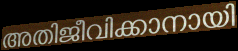
അതിജീവിക്കാനായി